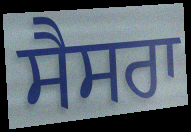
ਸੈਸਰਾ